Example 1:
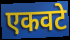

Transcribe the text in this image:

एकवटे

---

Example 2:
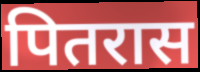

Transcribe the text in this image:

पितरास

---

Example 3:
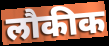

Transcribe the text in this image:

लौकीक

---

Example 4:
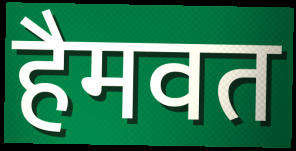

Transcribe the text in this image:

हैमवत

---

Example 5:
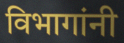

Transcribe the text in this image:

विभागांनी